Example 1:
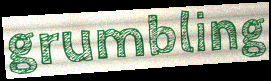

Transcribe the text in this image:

grumbling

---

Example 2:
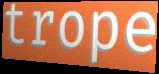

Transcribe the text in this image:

trope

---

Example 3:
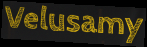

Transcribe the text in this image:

Velusamy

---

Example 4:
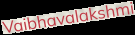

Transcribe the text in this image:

Vaibhavalakshmi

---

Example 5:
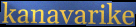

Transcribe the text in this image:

kanavarike